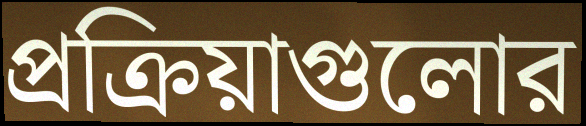
প্রক্রিয়াগুলোর